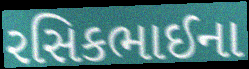
રસિકભાઈના